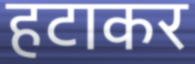
हटाकर